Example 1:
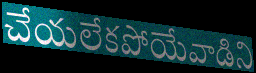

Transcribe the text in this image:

చేయలేకపోయేవాడిని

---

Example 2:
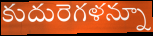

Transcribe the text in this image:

కుదురెగళన్నూ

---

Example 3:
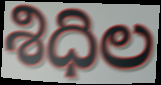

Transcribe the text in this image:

శిధిల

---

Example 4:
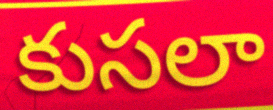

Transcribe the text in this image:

కుసలా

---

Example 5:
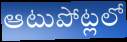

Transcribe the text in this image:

ఆటుపోట్లలో